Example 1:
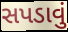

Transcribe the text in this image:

સપડાવું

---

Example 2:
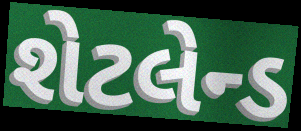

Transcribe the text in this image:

શેટલેન્ડ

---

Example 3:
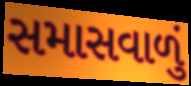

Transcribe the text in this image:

સમાસવાળું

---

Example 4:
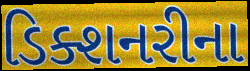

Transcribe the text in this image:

ડિક્શનરીના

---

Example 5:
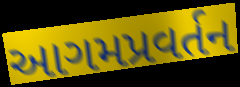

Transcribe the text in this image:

આગમપ્રવર્તન